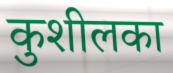
कुशीलका